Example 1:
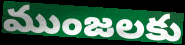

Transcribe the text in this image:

ముంజలకు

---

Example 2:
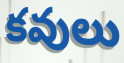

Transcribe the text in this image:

కవులు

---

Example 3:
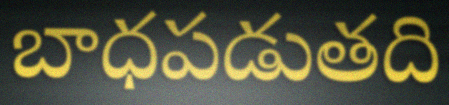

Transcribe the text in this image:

బాధపడుతది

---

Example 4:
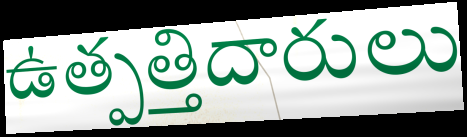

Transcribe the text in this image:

ఉత్పత్తిదారులు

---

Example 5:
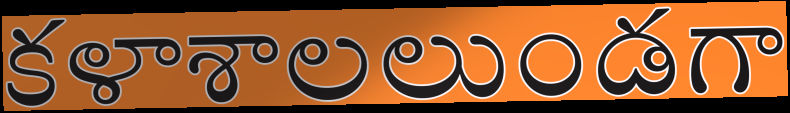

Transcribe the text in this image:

కళాశాలలుండగా